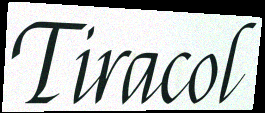
Tiracol